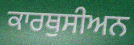
ਕਾਰਥੁਸੀਅਨ